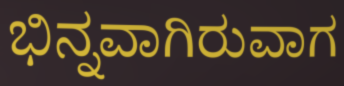
ಭಿನ್ನವಾಗಿರುವಾಗ